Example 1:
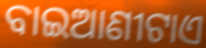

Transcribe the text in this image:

ବାଇଆଣୀଟାଏ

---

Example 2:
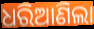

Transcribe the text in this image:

ଧରିଆଣିଲା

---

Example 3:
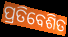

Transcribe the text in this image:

ପ୍ରତିବେଶିତ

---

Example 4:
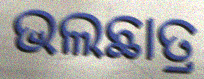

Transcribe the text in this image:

ଭଲଛାତ୍ର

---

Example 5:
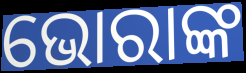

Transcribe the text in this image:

ଭୋରାଙ୍କ